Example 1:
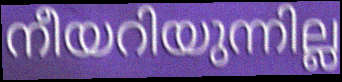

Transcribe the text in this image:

നീയറിയുന്നില്ല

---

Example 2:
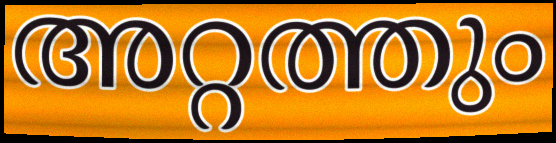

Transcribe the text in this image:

അറ്റത്തും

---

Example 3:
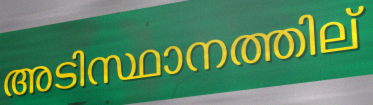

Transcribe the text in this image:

അടിസ്ഥാനത്തില്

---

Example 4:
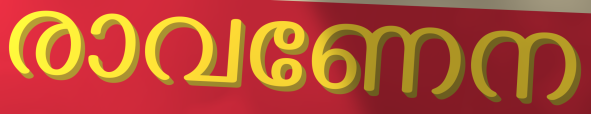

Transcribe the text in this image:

രാവണേന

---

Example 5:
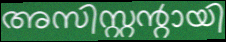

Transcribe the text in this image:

അസിസ്റ്റന്റായി